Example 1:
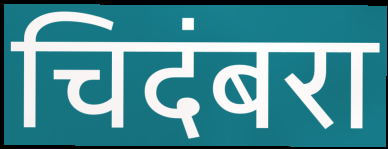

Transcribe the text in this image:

चिदंबरा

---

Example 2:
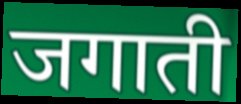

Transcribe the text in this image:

जगाती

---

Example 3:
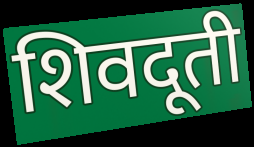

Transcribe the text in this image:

शिवदूती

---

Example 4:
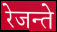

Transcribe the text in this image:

रेजन्ते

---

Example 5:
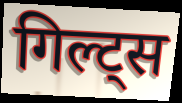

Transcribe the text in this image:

गिल्ट्स